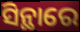
ସିନ୍ଥାରେ